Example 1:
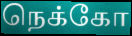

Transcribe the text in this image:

நெக்கோ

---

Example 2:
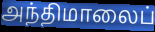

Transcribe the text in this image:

அந்திமாலைப்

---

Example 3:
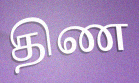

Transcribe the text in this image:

திண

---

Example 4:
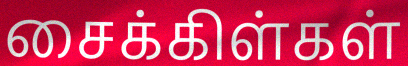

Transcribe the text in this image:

சைக்கிள்கள்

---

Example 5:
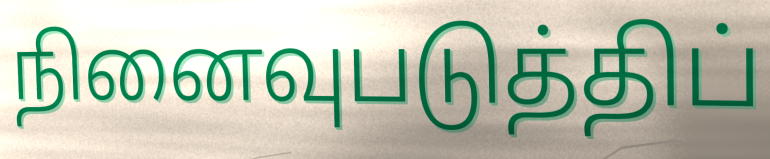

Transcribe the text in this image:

நினைவுபடுத்திப்